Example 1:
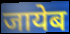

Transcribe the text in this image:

जायेब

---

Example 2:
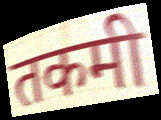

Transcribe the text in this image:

तकमी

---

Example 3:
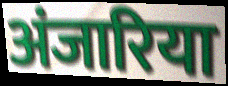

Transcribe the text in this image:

अंजारिया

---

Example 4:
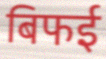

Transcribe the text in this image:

बिफई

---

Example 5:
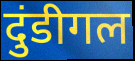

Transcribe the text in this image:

दुंडीगल